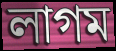
লাগম